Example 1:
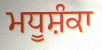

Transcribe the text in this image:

ਮਧੂਸ਼ੰਕਾ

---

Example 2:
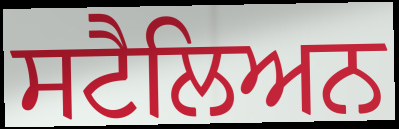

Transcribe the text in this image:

ਸਟੈਲਿਅਨ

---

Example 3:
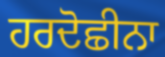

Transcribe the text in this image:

ਹਰਦੋਛੀਨਾ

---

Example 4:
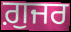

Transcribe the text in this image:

ਗ਼ੁਜਰ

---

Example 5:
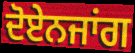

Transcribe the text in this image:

ਦੋਏਨਜਾਂਗ